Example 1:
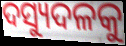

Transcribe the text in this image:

ଦସ୍ୟୁଦଳକୁ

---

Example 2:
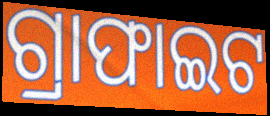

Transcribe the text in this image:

ଗ୍ରାଫାଇଟ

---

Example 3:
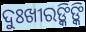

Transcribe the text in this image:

ଦୁଃଖୀରଙ୍କିଙ୍କି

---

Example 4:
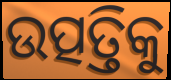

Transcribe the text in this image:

ଉତ୍ପତ୍ତିକୁ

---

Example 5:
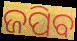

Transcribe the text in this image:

ଜପିବ